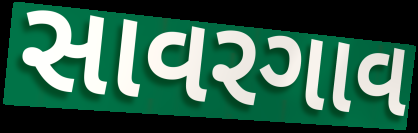
સાવરગાવ